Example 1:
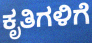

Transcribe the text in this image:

ಕೃತಿಗಳಿಗೆ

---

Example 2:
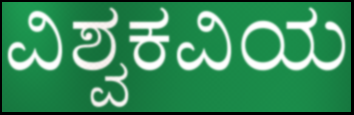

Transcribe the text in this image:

ವಿಶ್ವಕವಿಯ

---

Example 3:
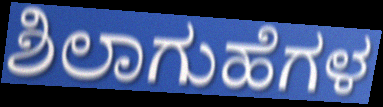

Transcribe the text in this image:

ಶಿಲಾಗುಹೆಗಳ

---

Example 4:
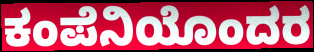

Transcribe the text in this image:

ಕಂಪೆನಿಯೊಂದರ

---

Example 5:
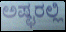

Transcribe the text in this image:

ಅಷ್ಟರಲ್ಲಿ